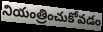
నియంత్రించుకోవడం